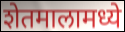
शेतमालामध्ये